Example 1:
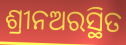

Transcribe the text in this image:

ଶ୍ରୀନଅରସ୍ଥିତ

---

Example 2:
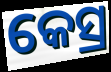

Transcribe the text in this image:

କେସ୍ର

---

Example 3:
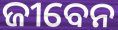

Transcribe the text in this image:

ଜୀବେନ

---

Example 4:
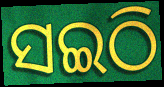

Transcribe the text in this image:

ସଇଠି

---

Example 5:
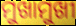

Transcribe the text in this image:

ମୁଖାମୁଖୀ